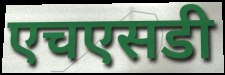
एचएसडी